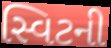
સ્વિટની